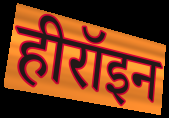
हीरॉइन